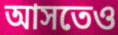
আসতেও